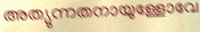
അത്യുന്നതനായുള്ളോവേ